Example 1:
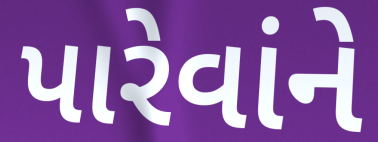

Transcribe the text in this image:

પારેવાંને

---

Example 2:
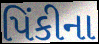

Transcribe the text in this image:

પિંકીના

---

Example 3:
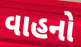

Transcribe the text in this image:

વાહનો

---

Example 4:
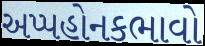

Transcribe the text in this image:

અપ્પહોનકભાવો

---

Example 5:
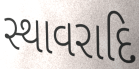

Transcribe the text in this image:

સ્થાવરાદિ